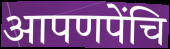
आपणपेंचि